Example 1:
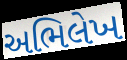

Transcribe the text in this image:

અભિલેખ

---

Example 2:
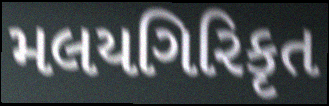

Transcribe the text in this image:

મલયગિરિકૃત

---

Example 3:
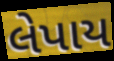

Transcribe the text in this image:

લેપાય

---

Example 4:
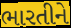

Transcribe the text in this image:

ભારતીને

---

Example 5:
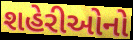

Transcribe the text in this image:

શહેરીઓનો